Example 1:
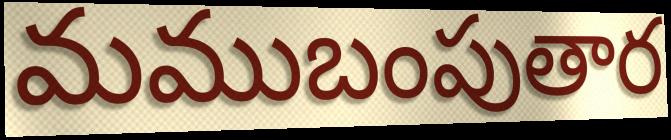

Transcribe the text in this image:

మముబంపుతార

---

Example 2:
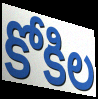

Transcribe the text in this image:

కోకిల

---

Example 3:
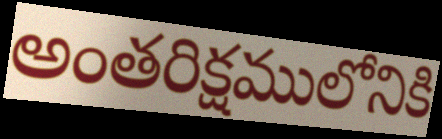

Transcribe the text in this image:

అంతరిక్షములోనికి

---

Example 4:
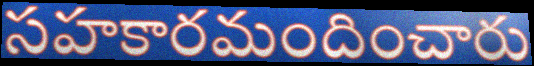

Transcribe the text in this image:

సహకారమందించారు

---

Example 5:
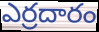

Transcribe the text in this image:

ఎర్రదారం